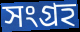
সংগ্রহ